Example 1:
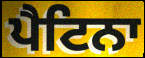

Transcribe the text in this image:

ਪੈਟਿਨਾ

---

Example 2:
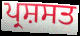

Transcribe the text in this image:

ਪ੍ਰਸ਼ਸਤ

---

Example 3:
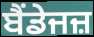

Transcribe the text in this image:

ਬੈਂਡੇਜਜ਼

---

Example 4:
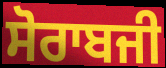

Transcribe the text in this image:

ਸੋਰਾਬਜੀ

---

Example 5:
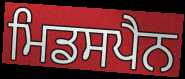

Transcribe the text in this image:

ਮਿਡਸਪੈਨ